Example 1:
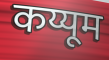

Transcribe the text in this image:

कय्यूम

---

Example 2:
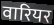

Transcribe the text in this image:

वारियर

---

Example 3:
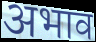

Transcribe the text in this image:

अभाव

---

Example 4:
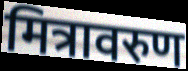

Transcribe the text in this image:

मित्रावरुण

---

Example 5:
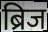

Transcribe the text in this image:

ब्रिज